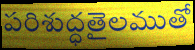
పరిశుద్ధతైలముతో